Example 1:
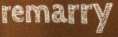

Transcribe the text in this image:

remarry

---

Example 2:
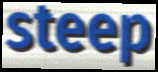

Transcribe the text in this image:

steep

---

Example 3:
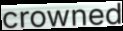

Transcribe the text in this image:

crowned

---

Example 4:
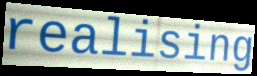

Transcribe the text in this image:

realising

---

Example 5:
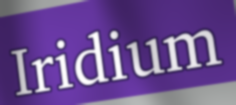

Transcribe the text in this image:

Iridium